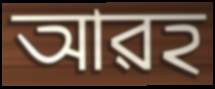
আৱহ